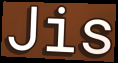
Jis